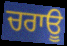
ਚਰਾਊ